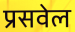
प्रसवेल